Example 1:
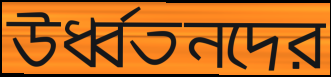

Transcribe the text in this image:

উর্ধ্বতনদের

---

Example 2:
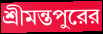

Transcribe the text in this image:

শ্রীমন্তপুরের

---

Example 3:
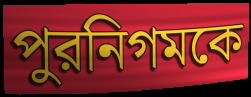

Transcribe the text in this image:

পুরনিগমকে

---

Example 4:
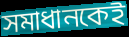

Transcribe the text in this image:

সমাধানকেই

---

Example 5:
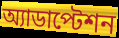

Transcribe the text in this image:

অ্যাডাপ্টেশন